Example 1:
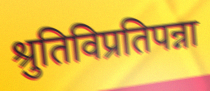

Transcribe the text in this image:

श्रुतिविप्रतिपन्ना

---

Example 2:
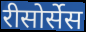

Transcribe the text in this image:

रीसोर्सेस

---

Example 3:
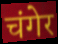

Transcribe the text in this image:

चंगेर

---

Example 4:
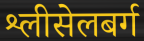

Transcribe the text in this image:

श्लीसेलबर्ग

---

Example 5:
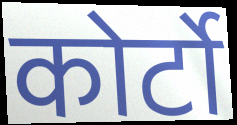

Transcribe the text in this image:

कोर्टो